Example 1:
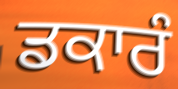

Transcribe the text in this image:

ਡਕਾਰੰ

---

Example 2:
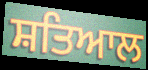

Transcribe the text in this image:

ਸ਼ਤਿਆਲ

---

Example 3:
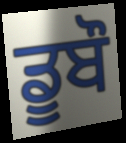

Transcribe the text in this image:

ਡੂਬੌ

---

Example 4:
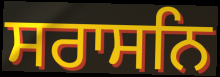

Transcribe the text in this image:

ਸਰਾਸਨਿ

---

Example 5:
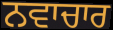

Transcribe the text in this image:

ਨਵਾਚਾਰ